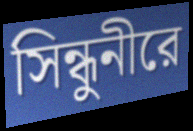
সিন্ধুনীরে